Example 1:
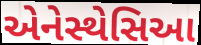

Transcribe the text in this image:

એનેસ્થેસિઆ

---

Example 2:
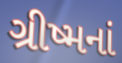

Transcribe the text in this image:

ગ્રીષ્મનાં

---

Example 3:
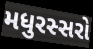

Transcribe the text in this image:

મધુરસ્સરો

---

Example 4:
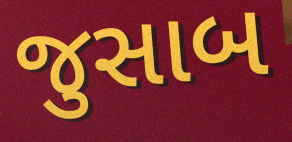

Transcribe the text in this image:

જુસાબ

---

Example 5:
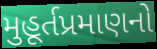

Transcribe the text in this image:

મુહૂર્તપ્રમાણનો